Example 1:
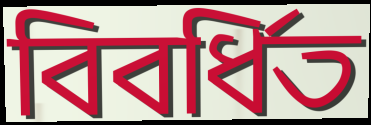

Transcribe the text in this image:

বিবর্ধিত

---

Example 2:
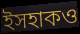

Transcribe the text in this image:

ইসহাকও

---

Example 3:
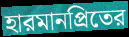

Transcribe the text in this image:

হারমানপ্রিতের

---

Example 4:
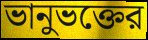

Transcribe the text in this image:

ভানুভক্তের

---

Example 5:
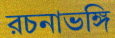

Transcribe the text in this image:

রচনাভঙ্গি